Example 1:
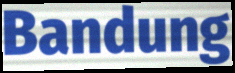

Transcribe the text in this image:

Bandung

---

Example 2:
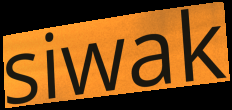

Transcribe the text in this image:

siwak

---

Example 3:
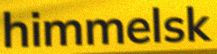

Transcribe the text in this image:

himmelsk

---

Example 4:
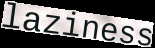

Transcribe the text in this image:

laziness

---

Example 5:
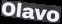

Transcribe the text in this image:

Olavo